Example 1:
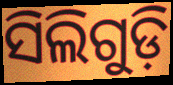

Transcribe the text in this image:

ସିଲିଗୁଡ଼ି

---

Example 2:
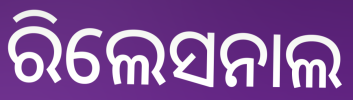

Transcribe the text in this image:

ରିଲେସନାଲ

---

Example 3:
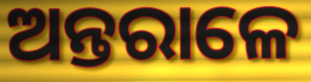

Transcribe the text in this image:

ଅନ୍ତରାଳେ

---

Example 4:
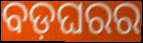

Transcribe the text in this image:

ବଡ଼ଘରର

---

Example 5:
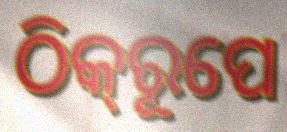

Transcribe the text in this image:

ଠିକ୍‍ରୂପେ